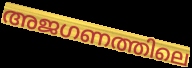
അജഗണത്തിലെ